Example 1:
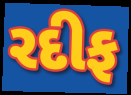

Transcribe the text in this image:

રદીફ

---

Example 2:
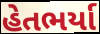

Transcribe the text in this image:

હેતભર્યા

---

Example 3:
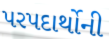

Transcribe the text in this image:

પરપદાર્થોની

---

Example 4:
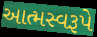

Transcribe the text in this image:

આત્મસ્વરૂપે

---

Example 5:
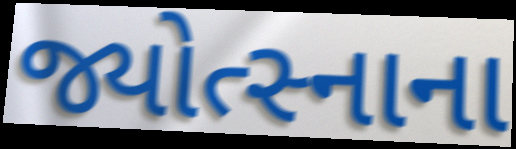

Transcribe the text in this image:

જ્યોત્સ્નાના